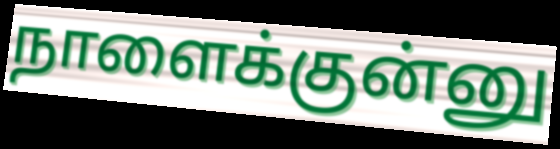
நாளைக்குன்னு